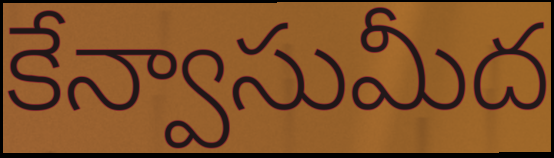
కేన్వాసుమీద